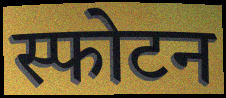
स्फोटन